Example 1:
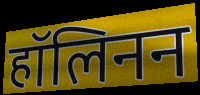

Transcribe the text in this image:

हॉलिनन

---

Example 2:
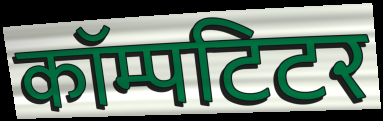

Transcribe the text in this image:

कॉम्पटिटर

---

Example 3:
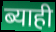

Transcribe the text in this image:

ब्याही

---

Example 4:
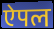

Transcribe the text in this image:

ऐपल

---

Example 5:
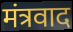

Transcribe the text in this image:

मंत्रवाद